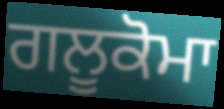
ਗਲੂਕੋਮਾ